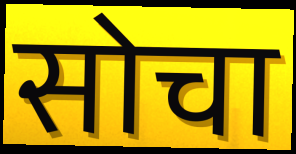
सोचा